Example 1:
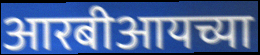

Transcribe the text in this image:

आरबीआयच्या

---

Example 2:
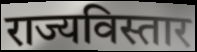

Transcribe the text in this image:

राज्यविस्तार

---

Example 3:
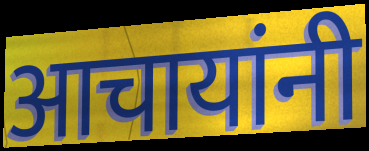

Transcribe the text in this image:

आचायांनी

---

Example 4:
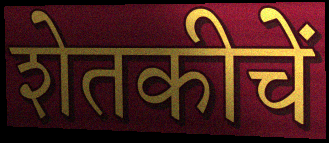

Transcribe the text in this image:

शेतकीचें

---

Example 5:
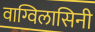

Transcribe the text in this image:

वाग्विलासिनी